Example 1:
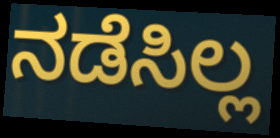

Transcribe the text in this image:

ನಡೆಸಿಲ್ಲ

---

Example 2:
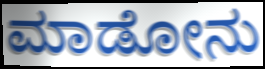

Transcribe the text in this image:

ಮಾಡೋನು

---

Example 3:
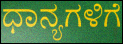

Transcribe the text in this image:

ಧಾನ್ಯಗಳಿಗೆ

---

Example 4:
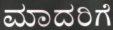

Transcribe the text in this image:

ಮಾದರಿಗೆ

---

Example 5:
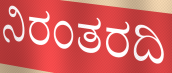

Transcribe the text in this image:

ನಿರಂತರದಿ